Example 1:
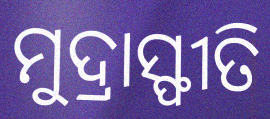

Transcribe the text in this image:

ମୁଦ୍ରାସ୍ଫୀତି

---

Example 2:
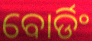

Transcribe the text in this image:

ବୋର୍ଡିଂ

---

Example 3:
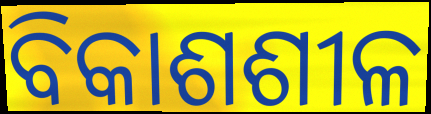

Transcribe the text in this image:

ବିକାଶଶୀଳ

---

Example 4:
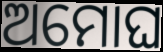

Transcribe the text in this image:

ଅମୋଘ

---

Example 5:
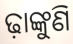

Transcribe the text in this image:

ଢ଼ାଙ୍କୁଣି